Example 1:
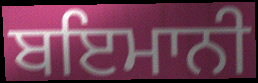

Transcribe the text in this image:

ਬਇਮਾਨੀ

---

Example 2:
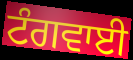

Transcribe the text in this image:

ਟੰਗਵਾਈ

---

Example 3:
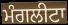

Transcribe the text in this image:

ਮੰਗਲੀਟਾ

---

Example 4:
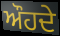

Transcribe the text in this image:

ਔਹਦੇ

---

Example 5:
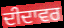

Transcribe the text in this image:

ਦੀਦਾਵਰ